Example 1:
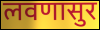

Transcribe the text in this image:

लवणासुर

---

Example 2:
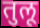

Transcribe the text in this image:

तुलू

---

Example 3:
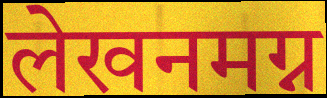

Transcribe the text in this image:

लेखनमग्न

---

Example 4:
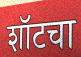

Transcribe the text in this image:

शॉटचा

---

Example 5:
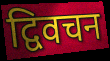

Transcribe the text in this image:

द्विवचन